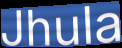
Jhula